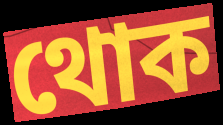
থোক